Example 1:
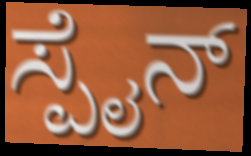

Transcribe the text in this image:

ಸ್ಪೈನ್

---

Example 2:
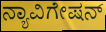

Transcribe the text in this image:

ನ್ಯಾವಿಗೇಷನ್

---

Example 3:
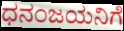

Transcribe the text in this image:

ಧನಂಜಯನಿಗೆ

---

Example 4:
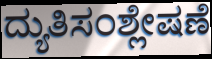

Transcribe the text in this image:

ದ್ಯುತಿಸಂಶ್ಲೇಷಣೆ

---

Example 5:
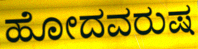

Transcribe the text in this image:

ಹೋದವರುಷ